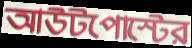
আউটপোস্টের